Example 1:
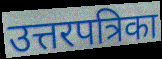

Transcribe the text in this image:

उत्तरपत्रिका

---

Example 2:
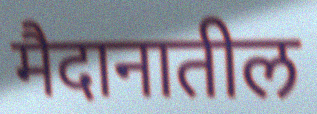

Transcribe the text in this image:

मैदानातील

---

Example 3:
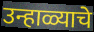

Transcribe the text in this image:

उन्हाळ्याचे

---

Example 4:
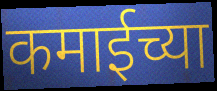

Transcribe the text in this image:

कमाईच्या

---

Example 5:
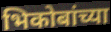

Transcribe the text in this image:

भिकोबांच्या